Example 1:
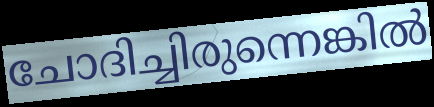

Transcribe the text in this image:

ചോദിച്ചിരുന്നെങ്കിൽ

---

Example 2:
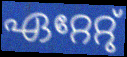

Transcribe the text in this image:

ഏറ്റേറ്റു്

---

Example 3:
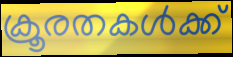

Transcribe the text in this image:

ക്രൂരതകൾക്ക്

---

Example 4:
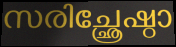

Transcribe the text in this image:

സരിച്ഛ്രേഷ്ഠാ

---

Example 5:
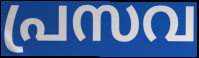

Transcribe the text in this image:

പ്രസവ